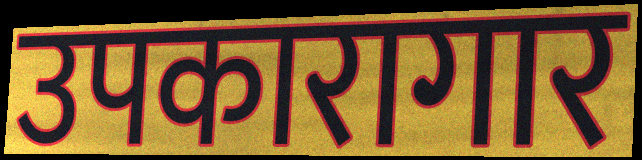
उपकारागार